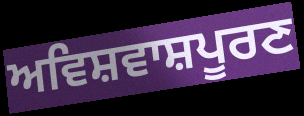
ਅਵਿਸ਼ਵਾਸ਼ਪੂਰਣ